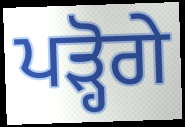
ਪੜ੍ਹੋਗੇ